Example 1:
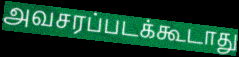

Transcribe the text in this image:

அவசரப்படக்கூடாது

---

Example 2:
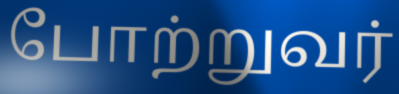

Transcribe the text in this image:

போற்றுவர்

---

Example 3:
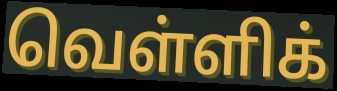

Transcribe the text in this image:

வெள்ளிக்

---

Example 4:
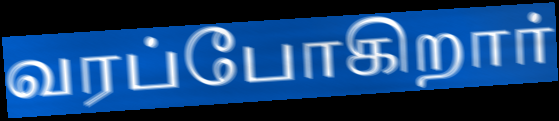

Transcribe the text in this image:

வரப்போகிறார்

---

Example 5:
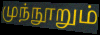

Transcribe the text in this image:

முந்நூறும்